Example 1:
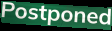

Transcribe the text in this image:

Postponed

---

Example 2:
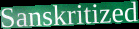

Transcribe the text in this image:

Sanskritized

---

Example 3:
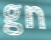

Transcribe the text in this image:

gn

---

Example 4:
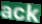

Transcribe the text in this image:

ack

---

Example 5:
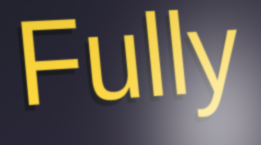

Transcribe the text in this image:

Fully